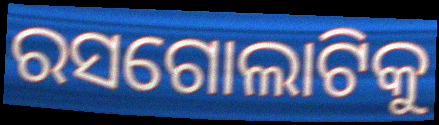
ରସଗୋଲାଟିକୁ